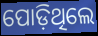
ପୋଡ଼ିଥିଲେ